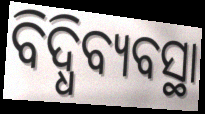
ବିଦ୍ଧିବ୍ୟବସ୍ଥା